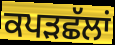
ਕਪੜਛੱਲਾਂ